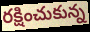
రక్షించుకున్న